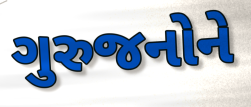
ગુરુજનોને